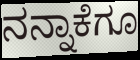
ನನ್ನಾಕೆಗೂ